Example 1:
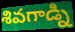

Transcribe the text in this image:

శివగాడ్ని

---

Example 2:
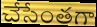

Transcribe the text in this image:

చేసేంతగా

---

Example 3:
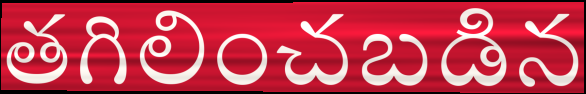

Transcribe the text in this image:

తగిలించబడిన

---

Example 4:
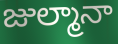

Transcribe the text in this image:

జుల్మానా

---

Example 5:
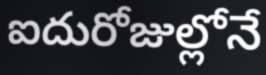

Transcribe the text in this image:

ఐదురోజుల్లోనే